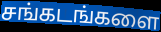
சங்கடங்களை